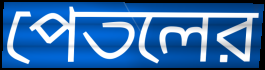
পেতলের